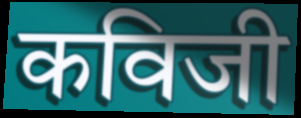
कविजी